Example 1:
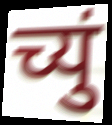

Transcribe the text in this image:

च्युं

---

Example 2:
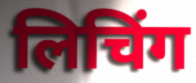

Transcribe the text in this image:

लिचिंग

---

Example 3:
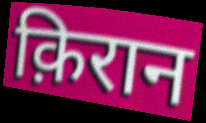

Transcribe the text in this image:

क़िरान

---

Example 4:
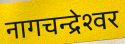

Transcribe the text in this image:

नागचन्द्रेश्वर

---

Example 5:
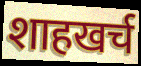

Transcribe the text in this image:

शाहखर्च